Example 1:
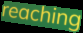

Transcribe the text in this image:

reaching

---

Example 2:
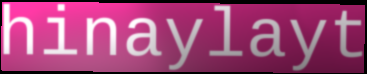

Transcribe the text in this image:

hinaylayt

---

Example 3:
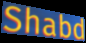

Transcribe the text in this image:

Shabd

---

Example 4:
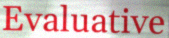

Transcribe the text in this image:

Evaluative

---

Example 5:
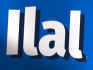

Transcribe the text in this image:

Ilal